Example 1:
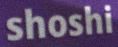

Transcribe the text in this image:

shoshi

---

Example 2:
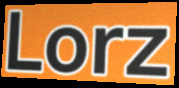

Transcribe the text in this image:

Lorz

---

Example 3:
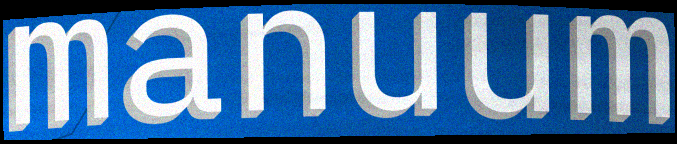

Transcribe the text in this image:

manuum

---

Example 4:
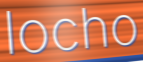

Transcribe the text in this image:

locho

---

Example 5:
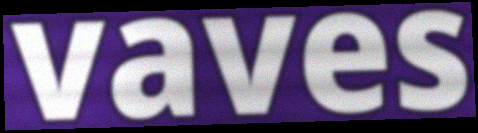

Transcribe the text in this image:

vaves